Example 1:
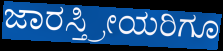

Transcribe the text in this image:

ಜಾರಸ್ತ್ರೀಯರಿಗೂ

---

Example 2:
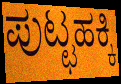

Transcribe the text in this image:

ಪುಟ್ಟಹಕ್ಕಿ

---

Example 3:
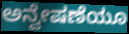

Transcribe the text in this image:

ಅನ್ವೇಷಣೆಯೂ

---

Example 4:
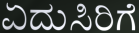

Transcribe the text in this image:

ಏದುಸಿರಿಗೆ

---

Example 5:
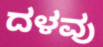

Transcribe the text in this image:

ದಳವು